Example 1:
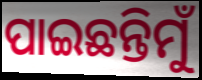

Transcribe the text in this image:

ପାଇଛନ୍ତିମୁଁ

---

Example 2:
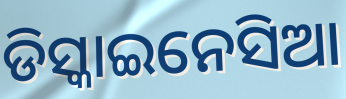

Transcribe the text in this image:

ଡିସ୍କାଇନେସିଆ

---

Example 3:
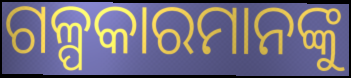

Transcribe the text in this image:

ଗଳ୍ପକାରମାନଙ୍କୁ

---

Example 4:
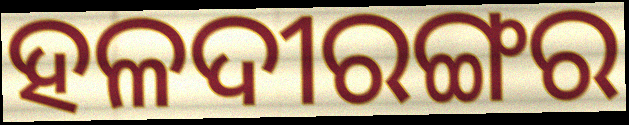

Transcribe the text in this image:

ହଳଦୀରଙ୍ଗର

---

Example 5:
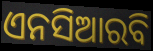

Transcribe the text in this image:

ଏନସିଆରବି